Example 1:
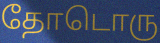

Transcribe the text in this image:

தோடொரு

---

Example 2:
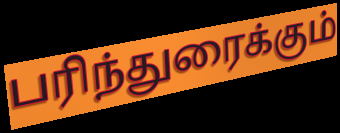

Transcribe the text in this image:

பரிந்துரைக்கும்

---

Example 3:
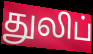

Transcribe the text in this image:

துலிப்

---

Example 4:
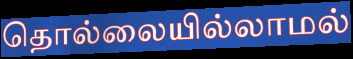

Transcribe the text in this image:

தொல்லையில்லாமல்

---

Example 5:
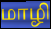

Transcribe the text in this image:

மாழி